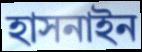
হাসনাইন